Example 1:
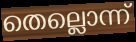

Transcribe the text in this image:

തെല്ലൊന്ന്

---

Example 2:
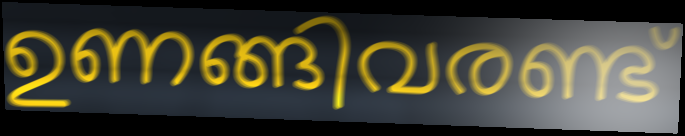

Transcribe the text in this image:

ഉണങ്ങിവരണ്ട്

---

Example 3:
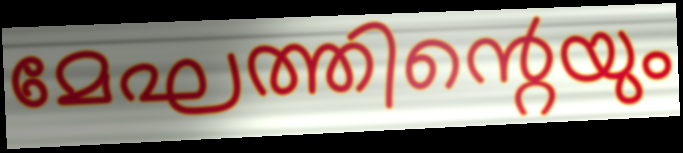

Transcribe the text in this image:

മേഘത്തിന്റെയും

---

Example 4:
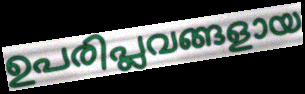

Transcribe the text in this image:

ഉപരിപ്ലവങ്ങളായ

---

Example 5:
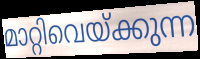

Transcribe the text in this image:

മാറ്റിവെയ്ക്കുന്ന